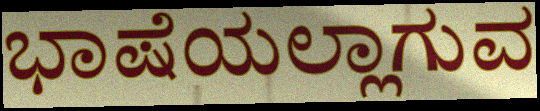
ಭಾಷೆಯಲ್ಲಾಗುವ